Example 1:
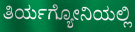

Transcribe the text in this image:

ತಿರ್ಯಗ್ಯೋನಿಯಲ್ಲಿ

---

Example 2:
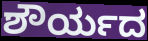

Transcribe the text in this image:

ಶೌರ್ಯದ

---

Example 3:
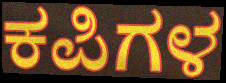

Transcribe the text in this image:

ಕಪಿಗಳ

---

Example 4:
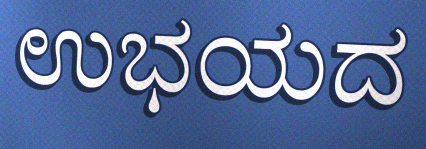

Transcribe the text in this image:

ಉಭಯದ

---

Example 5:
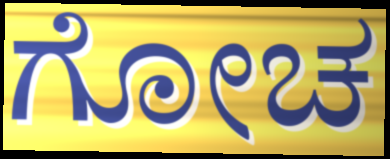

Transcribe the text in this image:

ಗೋಚ